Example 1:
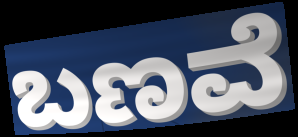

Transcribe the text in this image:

ಬಣವೆ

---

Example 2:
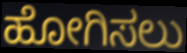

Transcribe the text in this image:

ಹೋಗಿಸಲು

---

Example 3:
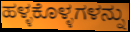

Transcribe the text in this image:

ಹಳ್ಳಕೊಳ್ಳಗಳನ್ನು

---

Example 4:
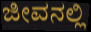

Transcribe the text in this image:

ಜೀವನಲ್ಲಿ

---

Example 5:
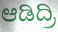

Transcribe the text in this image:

ಆಡಿದ್ರಿ